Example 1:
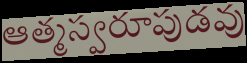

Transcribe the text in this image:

ఆత్మస్వరూపుడవు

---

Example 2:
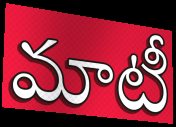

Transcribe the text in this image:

మాటీ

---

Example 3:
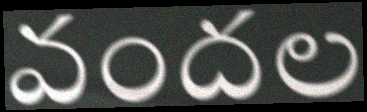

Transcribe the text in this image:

వందల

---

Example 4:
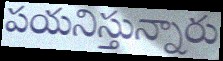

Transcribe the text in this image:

పయనిస్తున్నారు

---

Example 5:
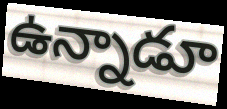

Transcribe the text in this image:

ఉన్నాడూ